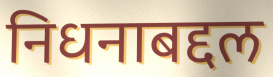
निधनाबद्दल